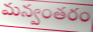
మన్వంతరం